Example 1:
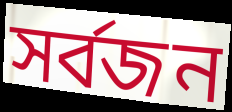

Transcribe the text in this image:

সৰ্বজন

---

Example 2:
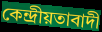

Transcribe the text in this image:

কেন্দ্ৰীয়তাবাদী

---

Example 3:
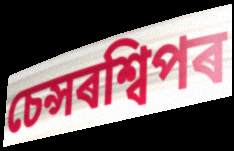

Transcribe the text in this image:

চেন্সৰশ্বিপৰ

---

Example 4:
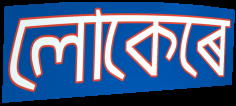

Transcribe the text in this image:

লোকেৰে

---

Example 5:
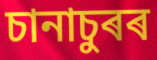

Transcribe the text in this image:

চানাচুৰৰ